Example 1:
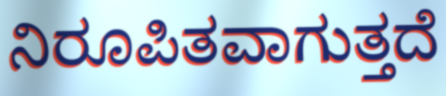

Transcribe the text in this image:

ನಿರೂಪಿತವಾಗುತ್ತದೆ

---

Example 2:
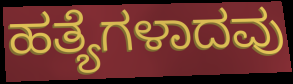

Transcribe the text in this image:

ಹತ್ಯೆಗಳಾದವು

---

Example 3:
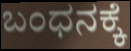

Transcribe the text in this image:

ಬಂಧನಕ್ಕೆ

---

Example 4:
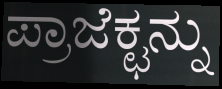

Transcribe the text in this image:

ಪ್ರಾಜೆಕ್ಟನ್ನು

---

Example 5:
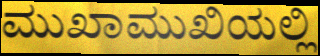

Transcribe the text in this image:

ಮುಖಾಮುಖಿಯಲ್ಲಿ